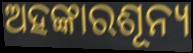
ଅହଙ୍କାରଶୂନ୍ୟ